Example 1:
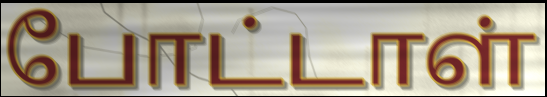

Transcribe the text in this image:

போட்டாள்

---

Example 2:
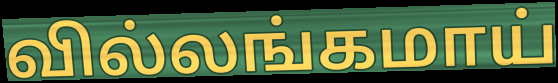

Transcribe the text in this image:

வில்லங்கமாய்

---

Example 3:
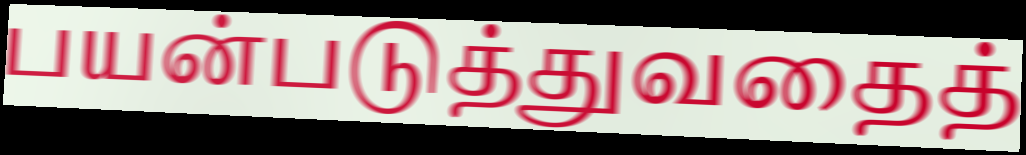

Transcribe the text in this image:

பயன்படுத்துவதைத்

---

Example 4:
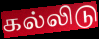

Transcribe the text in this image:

கல்லிடு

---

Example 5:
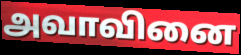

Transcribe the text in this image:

அவாவினை